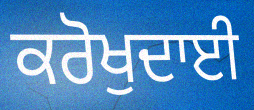
ਕਰੋਖੁਦਾਈ